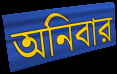
অনিবার